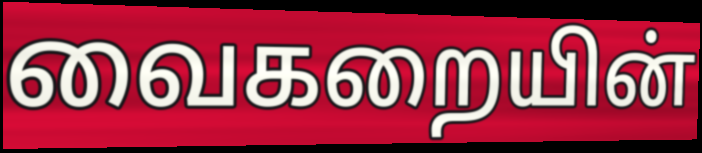
வைகறையின்